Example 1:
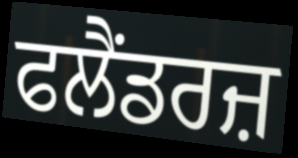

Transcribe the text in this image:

ਫਲੈਂਡਰਜ਼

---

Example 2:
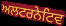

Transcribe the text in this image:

ਅਲਟਰਨੇਟਿਵ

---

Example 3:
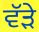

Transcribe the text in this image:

ਵੱਡ਼ੇ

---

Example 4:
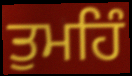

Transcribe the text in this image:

ਤੁਮਹਿੰ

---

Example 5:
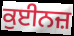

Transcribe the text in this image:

ਕੁਈਨਜ਼